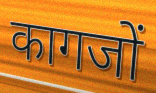
कागजों